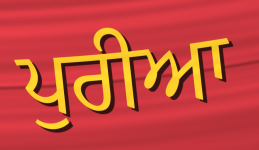
ਪੁਰੀਆ